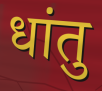
धांतु